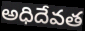
అధిదేవత